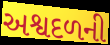
અશ્વદળની